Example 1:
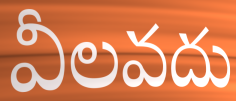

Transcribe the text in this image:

వీలవదు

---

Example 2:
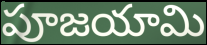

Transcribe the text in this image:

పూజయామి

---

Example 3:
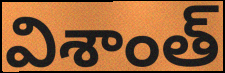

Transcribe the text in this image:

విశాంత్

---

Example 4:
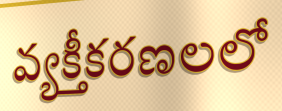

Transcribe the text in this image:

వ్యక్తీకరణలలో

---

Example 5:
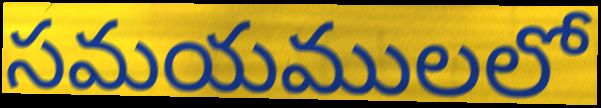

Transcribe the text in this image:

సమయములలో